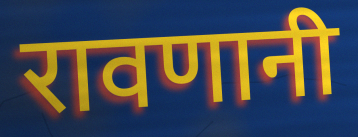
रावणानी